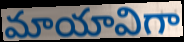
మాయావిగా